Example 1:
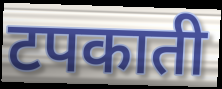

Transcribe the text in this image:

टपकाती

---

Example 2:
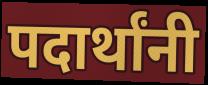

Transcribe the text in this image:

पदार्थांनी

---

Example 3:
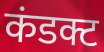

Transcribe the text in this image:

कंडक्ट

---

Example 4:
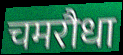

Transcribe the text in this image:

चमरौधा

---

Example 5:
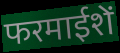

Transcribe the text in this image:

फरमाईशें